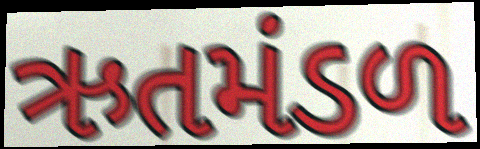
ઋતમંડળ